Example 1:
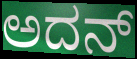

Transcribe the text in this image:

ಅದನ್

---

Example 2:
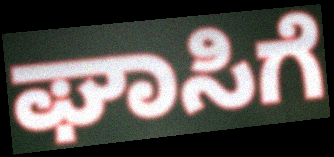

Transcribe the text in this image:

ಘಾಸಿಗೆ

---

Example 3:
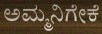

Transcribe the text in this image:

ಅಮ್ಮನಿಗೇಕೆ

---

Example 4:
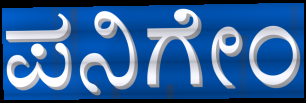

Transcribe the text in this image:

ಪನಿಗೇಂ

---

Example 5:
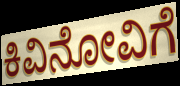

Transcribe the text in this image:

ಕಿವಿನೋವಿಗೆ